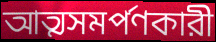
আত্মসমর্পণকারী